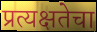
प्रत्यक्षतेचा